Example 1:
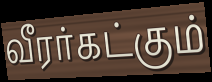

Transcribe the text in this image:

வீரர்கட்கும்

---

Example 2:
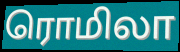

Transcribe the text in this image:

ரொமிலா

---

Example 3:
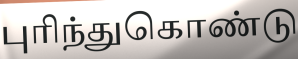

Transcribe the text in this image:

புரிந்துகொண்டு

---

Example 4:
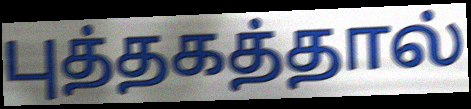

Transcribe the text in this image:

புத்தகத்தால்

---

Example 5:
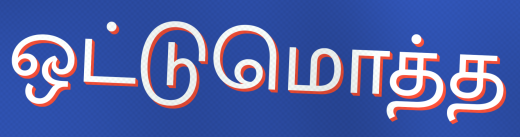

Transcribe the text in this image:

ஒட்டுமொத்த